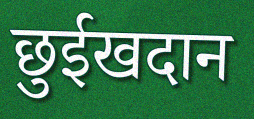
छुईखदान